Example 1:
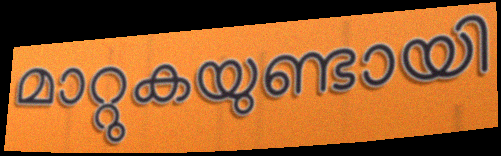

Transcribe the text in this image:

മാറ്റുകയുണ്ടായി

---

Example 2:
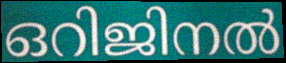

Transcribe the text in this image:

ഒറിജിനൽ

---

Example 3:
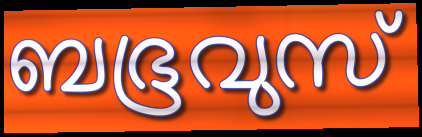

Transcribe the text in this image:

ബഭൂവുസ്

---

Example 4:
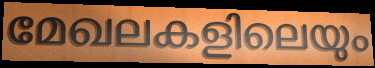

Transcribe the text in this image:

മേഖലകളിലെയും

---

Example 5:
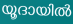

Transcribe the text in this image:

യൂദായിൽ